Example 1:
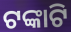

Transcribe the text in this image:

ଟଙ୍କାଟି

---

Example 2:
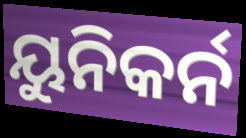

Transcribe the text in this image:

ୟୁନିକର୍ନ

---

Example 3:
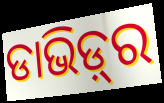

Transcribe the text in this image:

ଡାଭିଡ଼୍‍ର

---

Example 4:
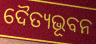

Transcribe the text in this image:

ଦୈତ୍ୟଭୂବନ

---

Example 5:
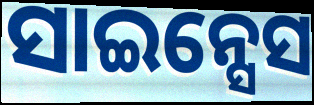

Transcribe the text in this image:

ସାଇନ୍ସେସ